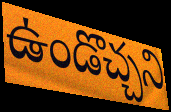
ఉండొచ్చని